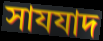
সাযযাদ